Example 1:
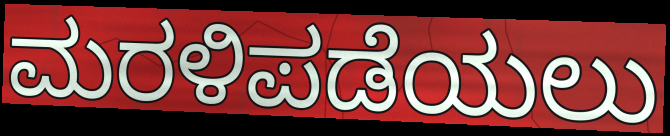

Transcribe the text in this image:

ಮರಳಿಪಡೆಯಲು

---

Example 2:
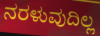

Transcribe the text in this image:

ನರಳುವುದಿಲ್ಲ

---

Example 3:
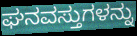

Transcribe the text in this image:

ಘನವಸ್ತುಗಳನ್ನು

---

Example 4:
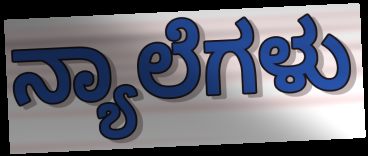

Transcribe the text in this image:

ನ್ಯಾಲೆಗಳು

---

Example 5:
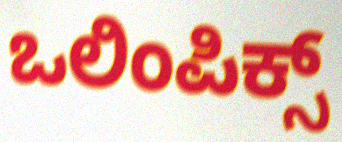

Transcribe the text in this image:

ಒಲಿಂಪಿಕ್ಸ್